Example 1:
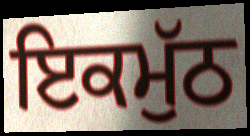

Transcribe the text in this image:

ਇਕਮੁੱਠ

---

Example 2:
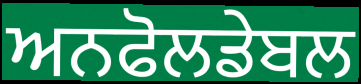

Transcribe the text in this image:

ਅਨਫੋਲਡੇਬਲ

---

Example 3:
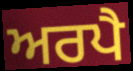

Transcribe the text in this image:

ਅਰਪੈ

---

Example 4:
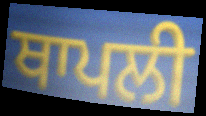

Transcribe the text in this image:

ਥਾਪਲੀ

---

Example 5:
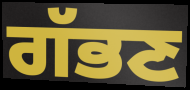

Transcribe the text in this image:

ਗੱਭਣ